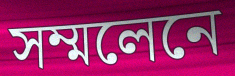
সম্মলেনে